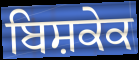
ਬਿਸ਼ਕੇਕ